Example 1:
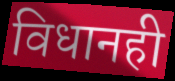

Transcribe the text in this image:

विधानही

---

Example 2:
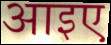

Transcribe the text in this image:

आइए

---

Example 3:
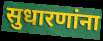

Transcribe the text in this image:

सुधारणांना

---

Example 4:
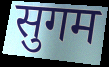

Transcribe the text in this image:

सुगम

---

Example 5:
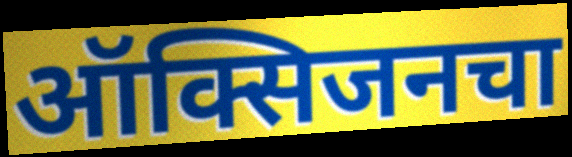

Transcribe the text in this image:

ऑक्सिजनचा